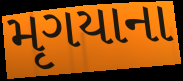
મૃગયાના